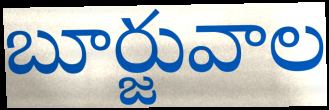
బూర్జువాల